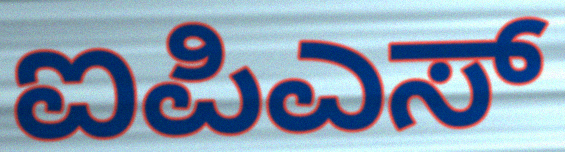
ಐಪಿಎಸ್